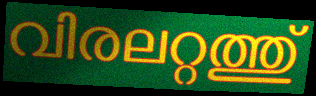
വിരലറ്റത്തു്